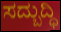
ಸದ್ಬುದ್ಧಿ